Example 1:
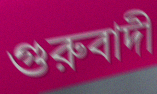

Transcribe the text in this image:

গুরুবাদী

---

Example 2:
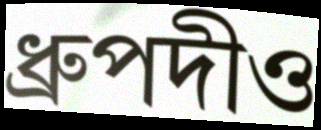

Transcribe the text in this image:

ধ্রুপদীও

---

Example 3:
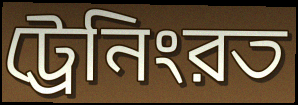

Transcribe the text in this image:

ট্রেনিংরত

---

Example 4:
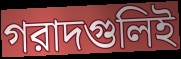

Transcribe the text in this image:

গরাদগুলিই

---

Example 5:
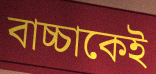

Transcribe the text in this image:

বাচ্চাকেই